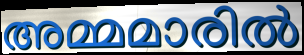
അമ്മമാരിൽ